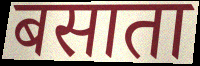
बसाता